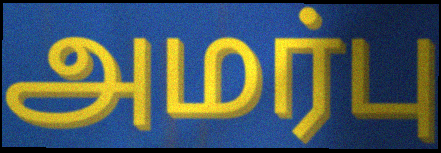
அமர்பு